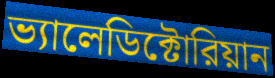
ভ্যালেডিক্টোরিয়ান